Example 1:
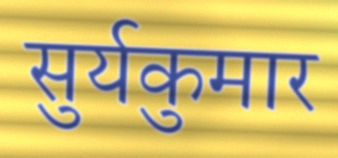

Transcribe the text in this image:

सुर्यकुमार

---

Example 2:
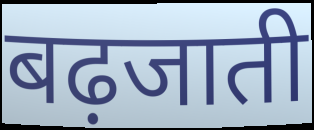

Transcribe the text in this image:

बढ़जाती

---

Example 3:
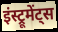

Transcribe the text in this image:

इंस्ट्रूमेंट्स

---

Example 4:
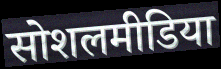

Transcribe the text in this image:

सोशलमीडिया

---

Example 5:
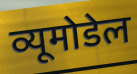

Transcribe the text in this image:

व्यूमोडेल